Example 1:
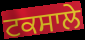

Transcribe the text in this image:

ਟਕਸਾਲੇ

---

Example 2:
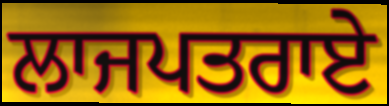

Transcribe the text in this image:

ਲਾਜਪਤਰਾਏ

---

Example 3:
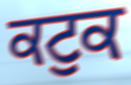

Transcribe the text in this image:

ਕਟੁਕ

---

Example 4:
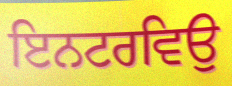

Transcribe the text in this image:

ਇਨਟਰਵਿਉ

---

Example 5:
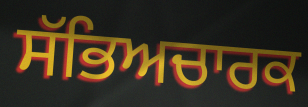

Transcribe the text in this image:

ਸੱਭਿਅਚਾਰਕ